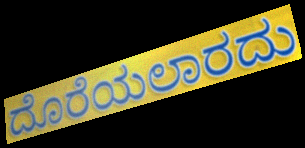
ದೊರೆಯಲಾರದು